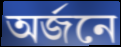
অর্জনে